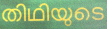
തിഥിയുടെ